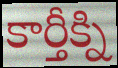
కార్తీక్ని